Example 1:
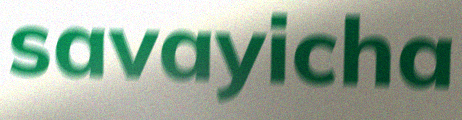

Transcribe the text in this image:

savayicha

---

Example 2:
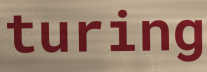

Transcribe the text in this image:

turing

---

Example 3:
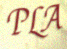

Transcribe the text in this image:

PLA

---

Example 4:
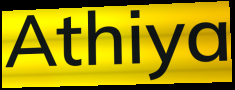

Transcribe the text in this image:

Athiya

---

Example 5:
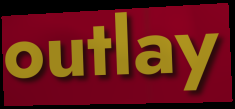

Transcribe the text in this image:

outlay